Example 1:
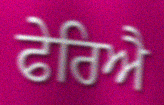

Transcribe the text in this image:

ਫੇਰਿਐ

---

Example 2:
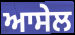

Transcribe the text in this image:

ਆਸੇਲ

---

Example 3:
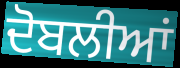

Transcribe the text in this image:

ਦੋਬਲੀਆਂ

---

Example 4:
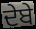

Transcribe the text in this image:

ਦੇਬੇ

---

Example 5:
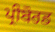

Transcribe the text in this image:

ਪ੍ਰੀਬੋਰਡ